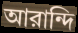
আরান্দি